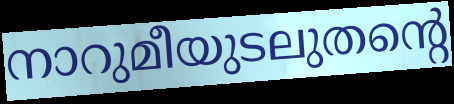
നാറുമീയുടലുതന്റെ